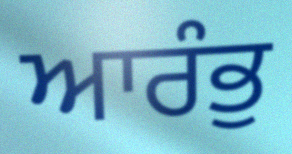
ਆਰੰਭੁ